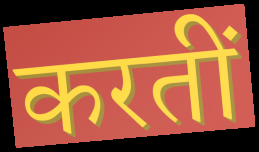
करतीं